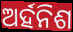
ଅର୍ହନିଶ